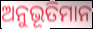
ଅନୁଭୂତିମାନ